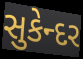
સુકેન્દર